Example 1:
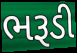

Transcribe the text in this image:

ભરૂડી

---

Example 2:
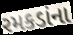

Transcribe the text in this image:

રમકડાંના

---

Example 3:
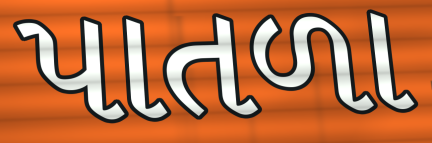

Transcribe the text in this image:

પાતળા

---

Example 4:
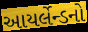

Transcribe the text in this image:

આયર્લેન્ડનો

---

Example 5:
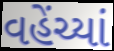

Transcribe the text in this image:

વહેંચ્યાં